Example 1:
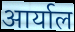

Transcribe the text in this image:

आर्याल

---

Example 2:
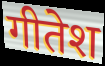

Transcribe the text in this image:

गीतेश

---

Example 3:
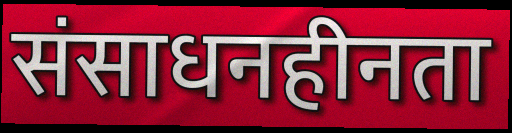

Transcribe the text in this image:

संसाधनहीनता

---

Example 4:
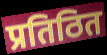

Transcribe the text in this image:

प्रतिठित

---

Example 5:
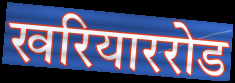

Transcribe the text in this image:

खरियाररोड